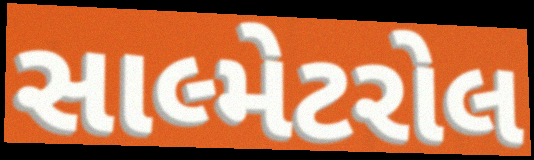
સાલ્મેટરોલ